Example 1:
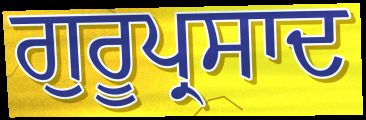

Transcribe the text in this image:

ਗੁਰੂਪ੍ਰਸਾਦ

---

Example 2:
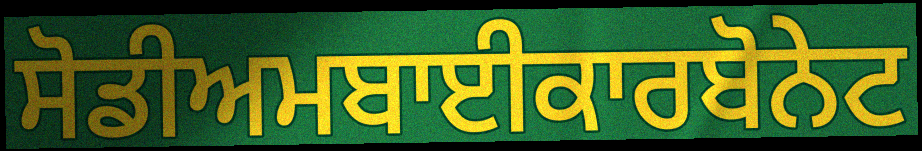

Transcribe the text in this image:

ਸੋਡੀਅਮਬਾਈਕਾਰਬੋਨੇਟ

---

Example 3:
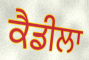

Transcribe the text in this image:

ਕੈਡੀਲਾ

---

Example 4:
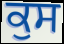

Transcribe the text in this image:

ਕੁਸ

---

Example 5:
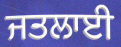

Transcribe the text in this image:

ਜਤਲਾਈ